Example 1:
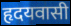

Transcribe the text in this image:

हृदयवासी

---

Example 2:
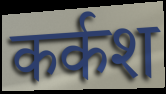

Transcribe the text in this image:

कर्कश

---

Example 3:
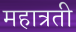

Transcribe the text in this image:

महात्रती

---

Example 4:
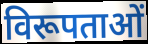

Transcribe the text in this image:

विरूपताओं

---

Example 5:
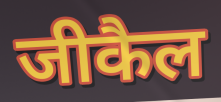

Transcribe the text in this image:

जीकैल